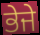
ਭੇਜੇ